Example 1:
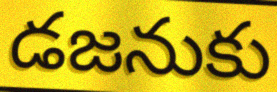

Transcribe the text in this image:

డజనుకు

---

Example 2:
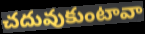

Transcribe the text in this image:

చదువుకుంటావా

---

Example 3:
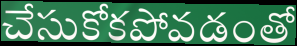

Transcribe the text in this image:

చేసుకోకపోవడంతో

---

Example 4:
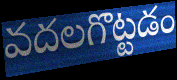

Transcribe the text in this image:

వదలగొట్టడం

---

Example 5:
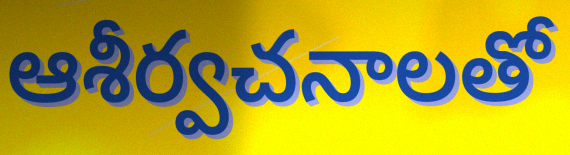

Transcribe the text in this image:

ఆశీర్వచనాలతో